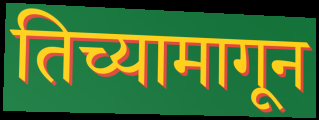
तिच्यामागून